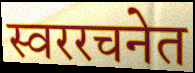
स्वररचनेत